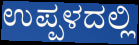
ಉಪ್ಪಳದಲ್ಲಿ